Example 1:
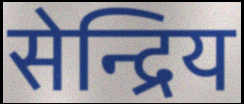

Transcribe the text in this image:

सेन्द्रिय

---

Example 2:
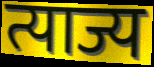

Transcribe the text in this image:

त्याज्य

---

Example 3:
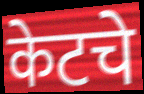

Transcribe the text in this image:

केटचे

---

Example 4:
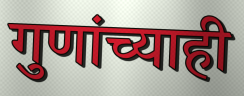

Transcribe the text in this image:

गुणांच्याही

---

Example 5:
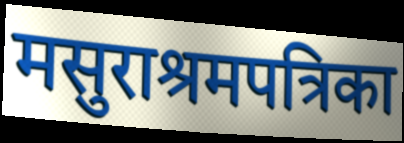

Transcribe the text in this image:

मसुराश्रमपत्रिका